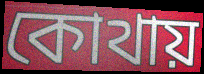
কোথায়